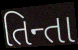
તિન્તા